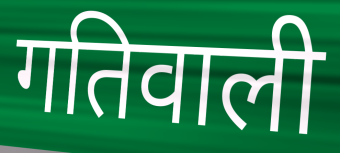
गतिवाली